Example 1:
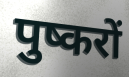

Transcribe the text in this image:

पुष्करों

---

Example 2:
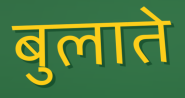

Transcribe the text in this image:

बुलाते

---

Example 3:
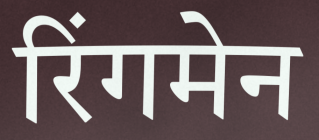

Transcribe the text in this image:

रिंगमेन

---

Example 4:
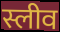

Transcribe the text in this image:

स्लीव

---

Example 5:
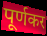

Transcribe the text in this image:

पूर्णकर